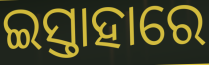
ଇସ୍ତାହାରେ